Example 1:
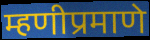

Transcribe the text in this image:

म्हणीप्रमाणे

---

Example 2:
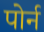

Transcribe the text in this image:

पोर्न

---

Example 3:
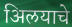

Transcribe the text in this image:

अिलयाचे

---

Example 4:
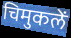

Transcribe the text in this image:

चिमुकलें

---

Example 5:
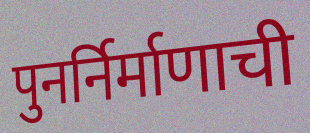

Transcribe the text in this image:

पुनर्निर्माणाची